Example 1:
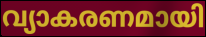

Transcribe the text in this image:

വ്യാകരണമായി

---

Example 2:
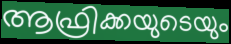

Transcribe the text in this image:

ആഫ്രിക്കയുടെയും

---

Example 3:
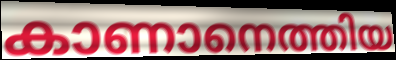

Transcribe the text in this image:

കാണാനെത്തിയ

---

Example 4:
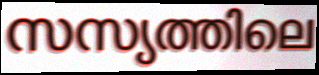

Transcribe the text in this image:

സസ്യത്തിലെ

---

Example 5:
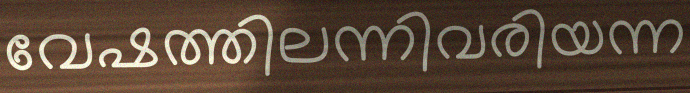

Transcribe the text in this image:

വേഷത്തിലന്നിവരിയന്ന